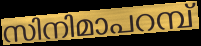
സിനിമാപറമ്പ്